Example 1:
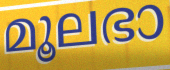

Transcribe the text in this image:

മൂലഭാ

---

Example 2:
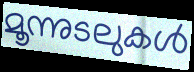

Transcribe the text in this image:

മൂന്നുടലുകൾ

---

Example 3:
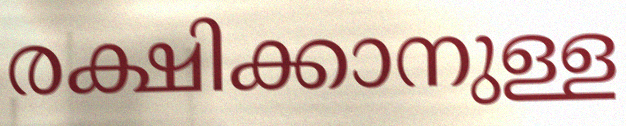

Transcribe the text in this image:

രക്ഷിക്കാനുള്ള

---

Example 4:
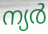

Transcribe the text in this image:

ന്യർ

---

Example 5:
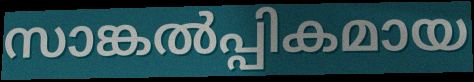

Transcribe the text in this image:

സാങ്കൽപ്പികമായ